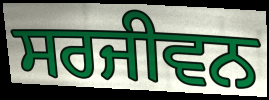
ਸਰਜੀਵਨ